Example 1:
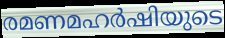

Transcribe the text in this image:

രമണമഹർഷിയുടെ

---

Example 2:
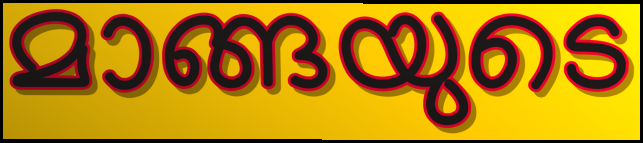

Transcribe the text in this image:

മാങ്ങയുടെ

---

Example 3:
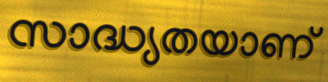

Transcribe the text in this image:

സാദ്ധ്യതയാണ്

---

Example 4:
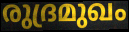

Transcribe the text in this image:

രുദ്രമുഖം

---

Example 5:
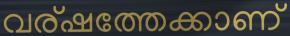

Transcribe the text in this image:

വര്ഷത്തേക്കാണ്